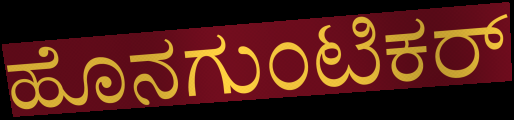
ಹೊನಗುಂಟಿಕರ್